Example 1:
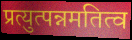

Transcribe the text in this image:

प्रत्युत्पन्नमतित्व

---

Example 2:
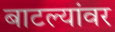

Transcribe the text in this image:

बाटल्यांवर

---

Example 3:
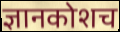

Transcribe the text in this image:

ज्ञानकोशच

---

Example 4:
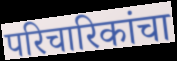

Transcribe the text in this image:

परिचारिकांचा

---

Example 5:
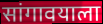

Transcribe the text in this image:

सांगावयाला